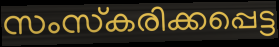
സംസ്‌കരിക്കപ്പെട്ട